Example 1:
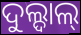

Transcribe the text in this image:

ଦୁଲ୍ଦାଲ୍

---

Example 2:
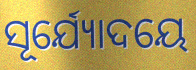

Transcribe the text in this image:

ସୂର୍ଯ୍ୟୋଦୟେ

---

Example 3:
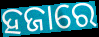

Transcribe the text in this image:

ହଜାରେ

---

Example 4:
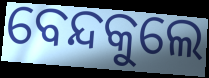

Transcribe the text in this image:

ବେନ୍ଦକୁଲେ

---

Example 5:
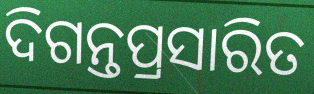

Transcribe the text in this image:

ଦିଗନ୍ତପ୍ରସାରିତ